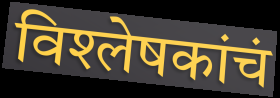
विश्लेषकांचं